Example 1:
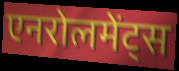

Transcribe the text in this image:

एनरोलमेंट्स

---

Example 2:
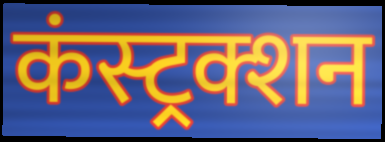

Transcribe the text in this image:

कंस्‍ट्रक्‍शन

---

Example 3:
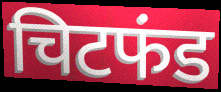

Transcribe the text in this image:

चिटफंड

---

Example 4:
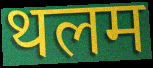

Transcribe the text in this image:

थलम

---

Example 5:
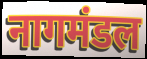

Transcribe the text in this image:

नागमंडल